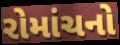
રોમાંચનો